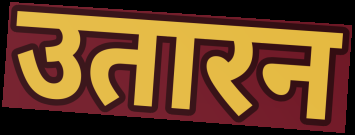
उतारन